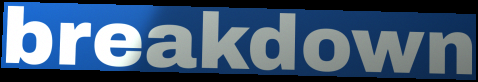
breakdown